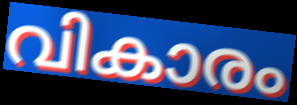
വികാരം